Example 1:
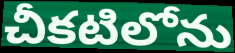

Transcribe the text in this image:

చీకటిలోను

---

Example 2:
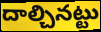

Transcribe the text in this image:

దాల్చినట్టు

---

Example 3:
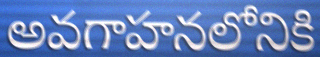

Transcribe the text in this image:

అవగాహనలోనికి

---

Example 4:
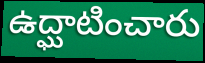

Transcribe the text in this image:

ఉద్ఘాటించారు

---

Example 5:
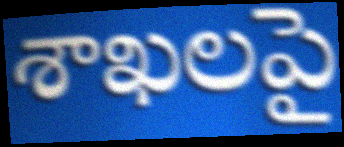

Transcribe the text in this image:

శాఖలపై